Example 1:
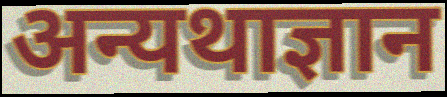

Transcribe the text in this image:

अन्यथाज्ञान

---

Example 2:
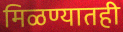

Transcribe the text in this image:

मिळण्यातही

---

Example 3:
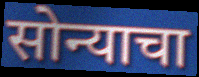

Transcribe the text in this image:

सोन्याचा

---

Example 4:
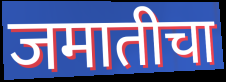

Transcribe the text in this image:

जमातीचा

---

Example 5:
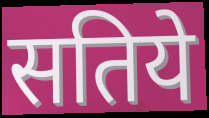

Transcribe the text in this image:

सतिये